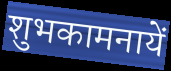
शुभकामनायें